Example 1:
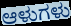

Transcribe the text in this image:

ಆಳುಗಳು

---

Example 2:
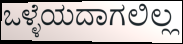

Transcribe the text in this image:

ಒಳ್ಳೆಯದಾಗಲಿಲ್ಲ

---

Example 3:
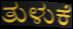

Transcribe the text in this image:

ತುಳುಕೆ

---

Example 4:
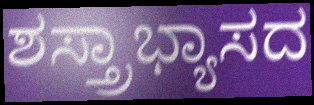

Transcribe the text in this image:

ಶಸ್ತ್ರಾಭ್ಯಾಸದ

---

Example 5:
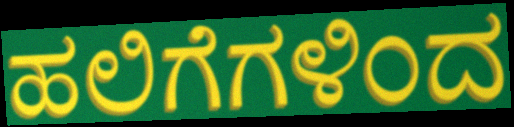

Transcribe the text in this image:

ಹಲಿಗೆಗಳಿಂದ